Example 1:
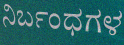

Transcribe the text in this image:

ನಿರ್ಬಂಧಗಳ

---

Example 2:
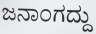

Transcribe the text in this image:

ಜನಾಂಗದ್ದು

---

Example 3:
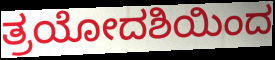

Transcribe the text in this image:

ತ್ರಯೋದಶಿಯಿಂದ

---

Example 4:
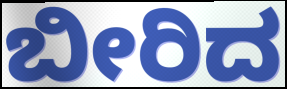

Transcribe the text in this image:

ಬೀರಿದ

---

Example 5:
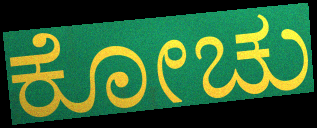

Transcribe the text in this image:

ಕೋಚು